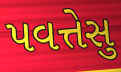
પવત્તેસુ